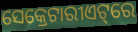
ସେକ୍ରେଟାରୀଏଟ୍‌ରେ